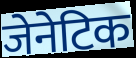
जेनेटिक